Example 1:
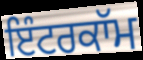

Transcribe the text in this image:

ਇੰਟਰਕਾੱਮ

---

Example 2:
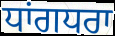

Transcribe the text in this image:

ਧਾਂਗਧਰਾ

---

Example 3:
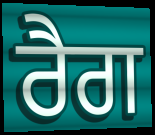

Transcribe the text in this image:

ਰੈਗ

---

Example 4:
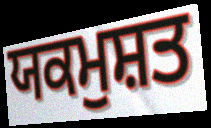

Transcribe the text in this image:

ਯਕਮੁਸ਼ਤ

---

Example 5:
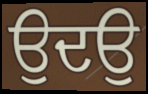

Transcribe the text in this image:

ਉਦਉ